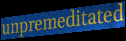
unpremeditated